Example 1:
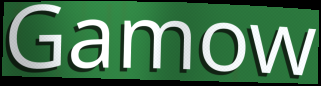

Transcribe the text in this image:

Gamow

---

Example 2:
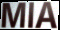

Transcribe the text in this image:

MIA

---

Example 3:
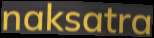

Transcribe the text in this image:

naksatra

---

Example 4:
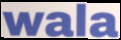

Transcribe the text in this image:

wala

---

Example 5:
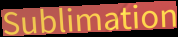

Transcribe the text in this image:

Sublimation